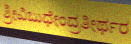
ಶ್ರೀವಿಬುಧೇಂದ್ರತೀರ್ಥರ